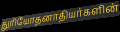
துரியோதனாதியர்களின்